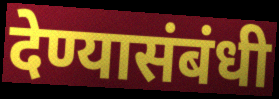
देण्यासंबंधी